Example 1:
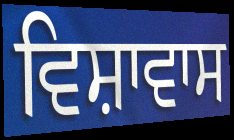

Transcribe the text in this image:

ਵਿਸ਼ਾਵਾਸ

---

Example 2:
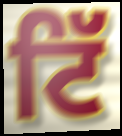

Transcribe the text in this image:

ਟਿੱ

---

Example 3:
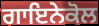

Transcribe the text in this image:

ਗਾਇਨੇਕੋਲ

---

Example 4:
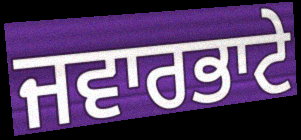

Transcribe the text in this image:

ਜਵਾਰਭਾਟੇ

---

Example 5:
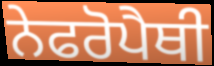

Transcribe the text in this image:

ਨੇਫਰੋਪੈਥੀ